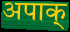
अपाक्